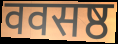
ववसष्ठ